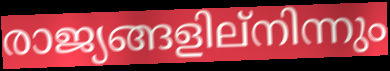
രാജ്യങ്ങളില്നിന്നും